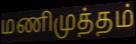
மணிமுத்தம்